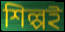
শিল্পই